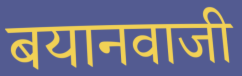
बयानवाजी